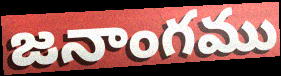
జనాంగము